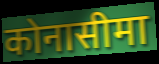
कोनासीमा